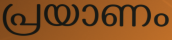
പ്രയാണം